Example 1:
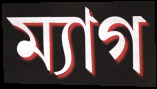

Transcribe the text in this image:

ম্যাগ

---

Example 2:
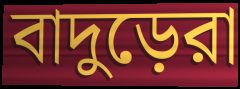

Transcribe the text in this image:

বাদুড়েরা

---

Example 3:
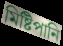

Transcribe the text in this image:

মিষ্টিপানি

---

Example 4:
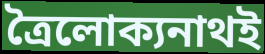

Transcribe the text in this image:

ত্রৈলোক্যনাথই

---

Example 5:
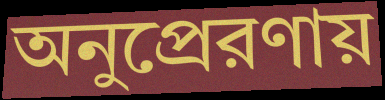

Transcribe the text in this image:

অনুপ্রেরণায়